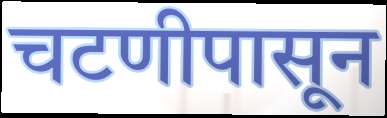
चटणीपासून